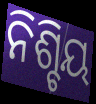
ନିଶ୍ଚିୟ